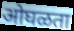
ओघळता